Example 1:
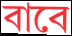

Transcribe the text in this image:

বাবে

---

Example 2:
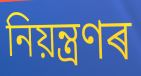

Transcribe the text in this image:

নিয়ন্ত্ৰণৰ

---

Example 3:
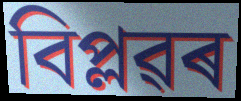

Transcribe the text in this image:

বিপ্লৱৰ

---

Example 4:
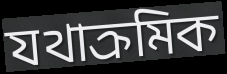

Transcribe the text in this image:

যথাক্ৰমিক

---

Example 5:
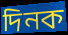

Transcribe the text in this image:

দিনক